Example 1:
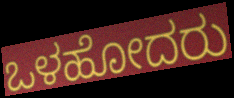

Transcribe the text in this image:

ಒಳಹೋದರು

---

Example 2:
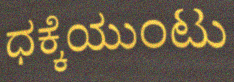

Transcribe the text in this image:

ಧಕ್ಕೆಯುಂಟು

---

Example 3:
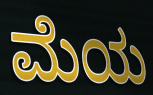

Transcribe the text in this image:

ಮೆಯ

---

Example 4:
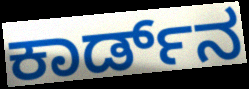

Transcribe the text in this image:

ಕಾರ್ಡ್‌ನ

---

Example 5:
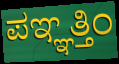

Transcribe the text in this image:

ಪಞ್ಞತ್ತಿಂ